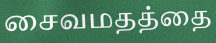
சைவமதத்தை